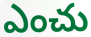
ఎంచు